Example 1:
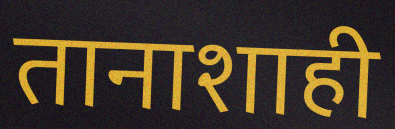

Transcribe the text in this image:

तानाशाही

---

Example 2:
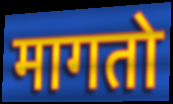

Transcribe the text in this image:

मागतो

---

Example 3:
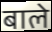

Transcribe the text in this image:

बाले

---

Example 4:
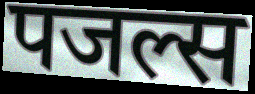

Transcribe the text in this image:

पजल्स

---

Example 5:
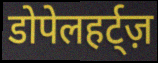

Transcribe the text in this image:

डोपेलहर्ट्ज़